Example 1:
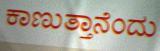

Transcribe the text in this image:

ಕಾಣುತ್ತಾನೆಂದು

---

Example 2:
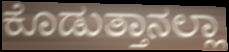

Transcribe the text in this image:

ಕೊಡುತ್ತಾನಲ್ಲಾ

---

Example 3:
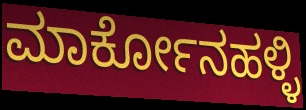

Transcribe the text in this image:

ಮಾರ್ಕೋನಹಳ್ಳಿ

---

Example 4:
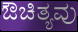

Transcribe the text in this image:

ಔಚಿತ್ಯವು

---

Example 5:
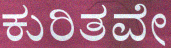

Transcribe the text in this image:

ಕುರಿತವೇ